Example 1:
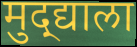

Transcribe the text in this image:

मुद्द्याला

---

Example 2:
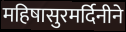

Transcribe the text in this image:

महिषासुरमर्दिनीने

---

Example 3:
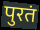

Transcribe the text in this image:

पुरतं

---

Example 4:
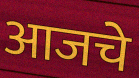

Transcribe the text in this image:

आजचे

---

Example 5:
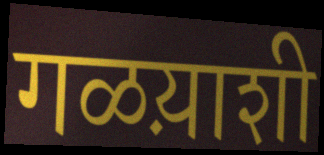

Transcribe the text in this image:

गळय़ाशी